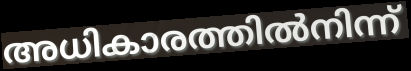
അധികാരത്തിൽനിന്ന്